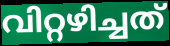
വിറ്റഴിച്ചത്